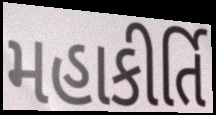
મહાકીર્તિ